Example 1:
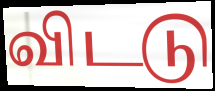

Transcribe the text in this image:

விடடு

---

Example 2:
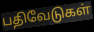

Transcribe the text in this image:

பதிவேடுகள்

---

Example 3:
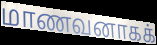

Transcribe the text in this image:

மாணவனாகக்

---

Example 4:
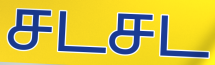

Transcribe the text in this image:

சடசட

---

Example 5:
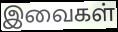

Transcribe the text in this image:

இவைகள்